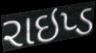
રાઇપ્ડ